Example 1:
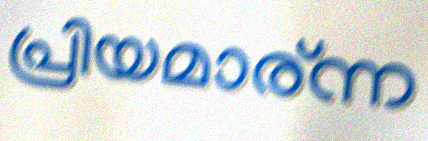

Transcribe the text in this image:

പ്രിയമാര്ന്ന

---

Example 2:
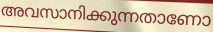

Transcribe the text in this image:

അവസാനിക്കുന്നതാണോ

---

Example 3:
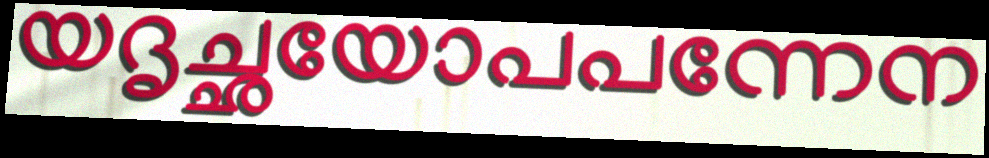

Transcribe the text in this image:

യദൃച്ഛയോപപന്നേന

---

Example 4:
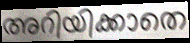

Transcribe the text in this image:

അറിയിക്കാതെ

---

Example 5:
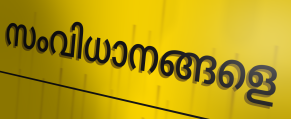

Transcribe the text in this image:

സംവിധാനങ്ങളെ